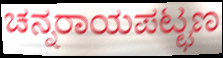
ಚನ್ನರಾಯಪಟ್ಟಣ